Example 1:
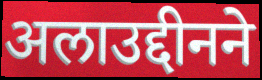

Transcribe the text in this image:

अलाउद्दीनने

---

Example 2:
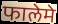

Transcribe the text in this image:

फालेमे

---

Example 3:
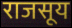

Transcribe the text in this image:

राजसूय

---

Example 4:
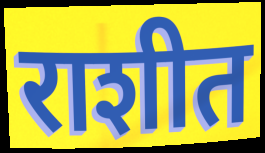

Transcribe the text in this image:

राशीत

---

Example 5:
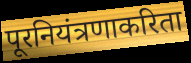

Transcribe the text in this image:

पूरनियंत्रणाकरिता